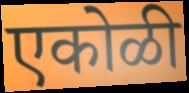
एकोळी